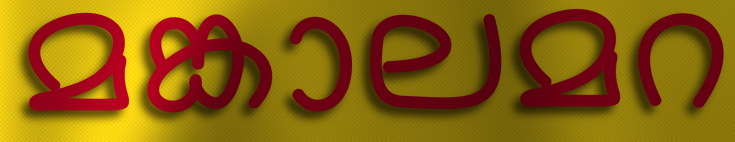
മങ്കാലമറ